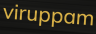
viruppam